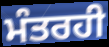
ਮੰਤਰਹੀ